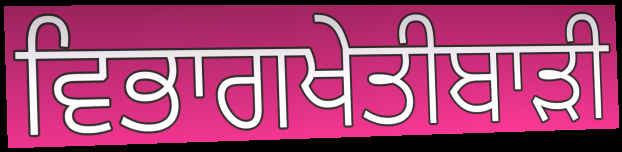
ਵਿਭਾਗਖੇਤੀਬਾੜੀ